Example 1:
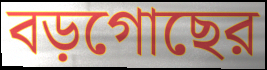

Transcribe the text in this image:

বড়গোছের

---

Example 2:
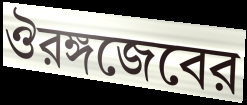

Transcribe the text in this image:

ঔরঙ্গজেবের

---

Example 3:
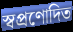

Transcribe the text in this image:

স্বপ্রণোদিত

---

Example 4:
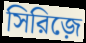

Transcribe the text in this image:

সিরিজ়ে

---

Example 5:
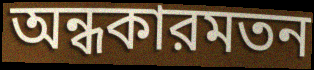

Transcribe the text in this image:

অন্ধকারমতন